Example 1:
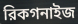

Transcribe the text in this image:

রিকগনাইজ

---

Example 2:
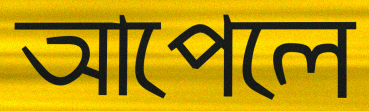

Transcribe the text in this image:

আপেলে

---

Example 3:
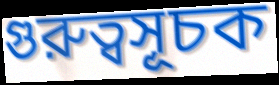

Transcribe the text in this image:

গুরুত্বসূচক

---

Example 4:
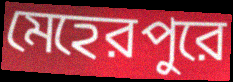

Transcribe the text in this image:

মেহেরপুরে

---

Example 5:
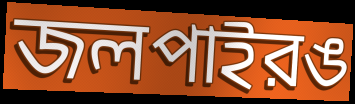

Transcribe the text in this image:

জলপাইরঙ